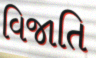
વિજાતિ